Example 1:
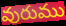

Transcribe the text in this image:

వురుము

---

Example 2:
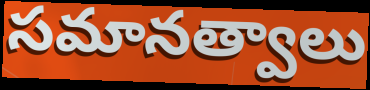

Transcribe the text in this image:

సమానత్వాలు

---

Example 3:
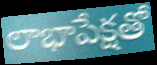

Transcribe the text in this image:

లాభాపేక్షతో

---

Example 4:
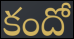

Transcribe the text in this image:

కందో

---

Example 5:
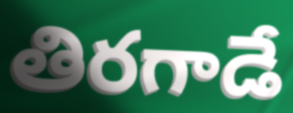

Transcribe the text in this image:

తిరగాడే